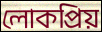
লোকপ্ৰিয়